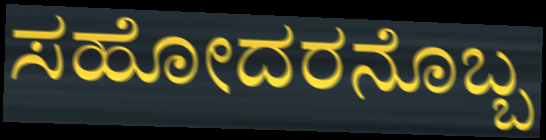
ಸಹೋದರನೊಬ್ಬ